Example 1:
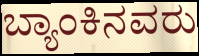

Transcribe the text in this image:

ಬ್ಯಾಂಕಿನವರು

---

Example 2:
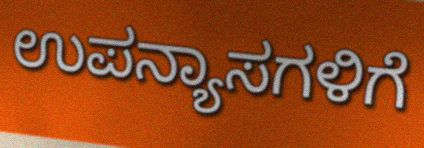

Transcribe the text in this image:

ಉಪನ್ಯಾಸಗಳಿಗೆ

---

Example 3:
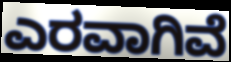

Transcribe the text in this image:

ಎರವಾಗಿವೆ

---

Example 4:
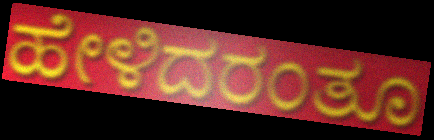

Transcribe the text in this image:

ಹೇಳಿದರಂತೂ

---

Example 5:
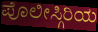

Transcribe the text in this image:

ಪೊಲೀಸ್ಗಿರಿಯ